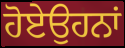
ਹੋਏਉਹਨਾਂ